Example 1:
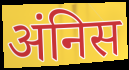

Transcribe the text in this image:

अंनिस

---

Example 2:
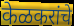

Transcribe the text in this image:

केळकरांचे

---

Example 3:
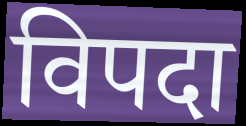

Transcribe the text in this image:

विपदा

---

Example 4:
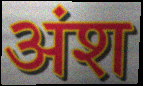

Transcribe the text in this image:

अंश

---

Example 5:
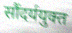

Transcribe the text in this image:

सौंदर्ययुक्त